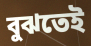
বুঝতেই